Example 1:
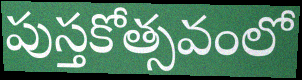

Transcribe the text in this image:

పుస్తకోత్సవంలో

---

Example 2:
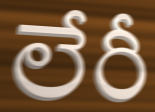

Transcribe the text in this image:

లేరీ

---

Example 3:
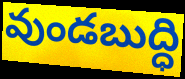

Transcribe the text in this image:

వుండబుద్ధి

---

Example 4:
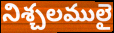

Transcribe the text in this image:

నిశ్చలములై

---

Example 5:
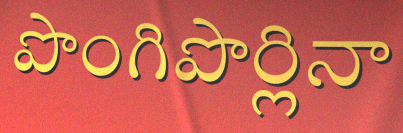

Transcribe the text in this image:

పొంగిపొర్లినా